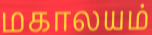
மகாலயம்